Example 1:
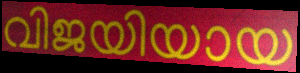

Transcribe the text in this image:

വിജയിയായ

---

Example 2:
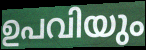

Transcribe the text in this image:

ഉപവിയും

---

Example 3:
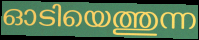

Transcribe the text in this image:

ഓടിയെത്തുന്ന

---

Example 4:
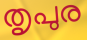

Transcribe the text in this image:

തൃപുര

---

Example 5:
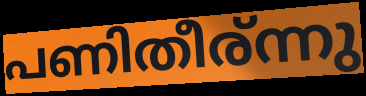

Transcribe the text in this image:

പണിതീര്ന്നു